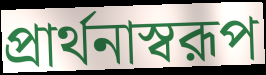
প্রার্থনাস্বরূপ